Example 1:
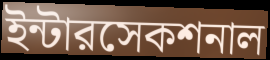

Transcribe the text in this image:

ইন্টারসেকশনাল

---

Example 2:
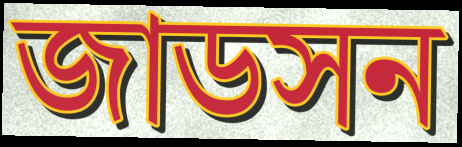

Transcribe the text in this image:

জাডসন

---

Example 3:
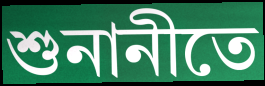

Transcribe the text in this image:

শুনানীতে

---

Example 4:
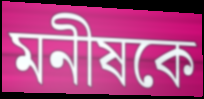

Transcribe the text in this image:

মনীষকে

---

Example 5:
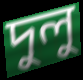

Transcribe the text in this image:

দুলু